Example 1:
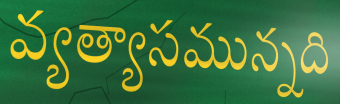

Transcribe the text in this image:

వ్యత్యాసమున్నది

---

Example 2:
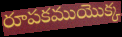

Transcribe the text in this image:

రూపకముయొక్క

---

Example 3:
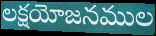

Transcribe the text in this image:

లక్షయోజనముల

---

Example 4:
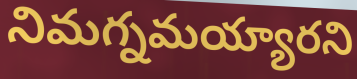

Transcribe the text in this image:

నిమగ్నమయ్యారని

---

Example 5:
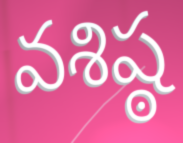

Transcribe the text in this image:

వశిష్ఠ